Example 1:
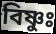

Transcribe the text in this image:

বিষ্ণুঃ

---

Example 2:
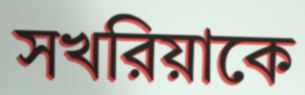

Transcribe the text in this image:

সখরিয়াকে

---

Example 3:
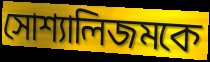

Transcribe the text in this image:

সোশ্যালিজমকে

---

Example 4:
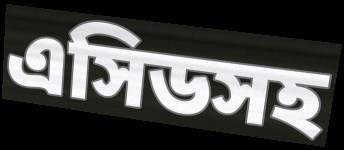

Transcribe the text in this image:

এসিডসহ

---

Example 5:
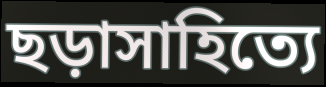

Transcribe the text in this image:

ছড়াসাহিত্যে